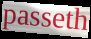
passeth